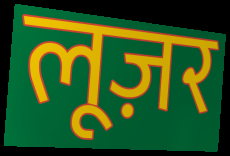
लूज़र